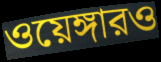
ওয়েঙ্গারও